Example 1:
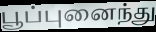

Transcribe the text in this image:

பூப்புனைந்து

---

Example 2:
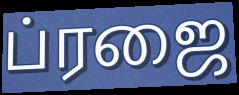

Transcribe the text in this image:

ப்ரஜை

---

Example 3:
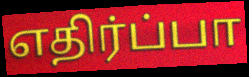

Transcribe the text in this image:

எதிர்ப்பா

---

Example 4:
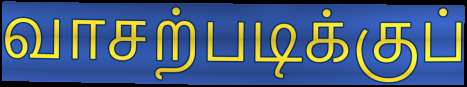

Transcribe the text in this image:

வாசற்படிக்குப்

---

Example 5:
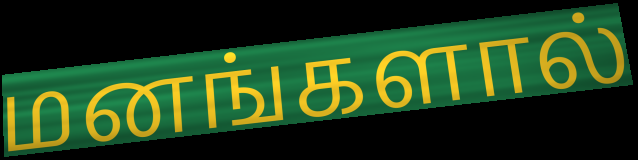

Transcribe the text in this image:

மனங்களால்